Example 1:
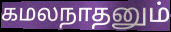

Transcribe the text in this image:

கமலநாதனும்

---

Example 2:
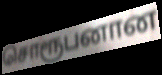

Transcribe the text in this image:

சொரூபனான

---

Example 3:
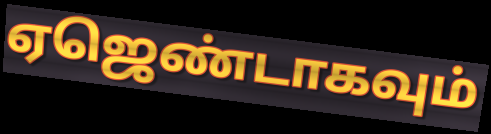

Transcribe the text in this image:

ஏஜெண்டாகவும்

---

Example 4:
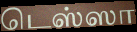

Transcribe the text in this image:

டெஸ்ஸா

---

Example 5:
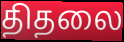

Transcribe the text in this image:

திதலை